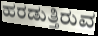
ಹರಡುತ್ತಿರುವ